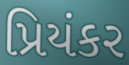
પ્રિયંકર